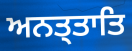
ਅਨਤ੍ਤਾਤਿ